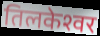
तिलकेश्वर